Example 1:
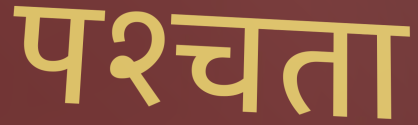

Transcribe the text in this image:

पश्चता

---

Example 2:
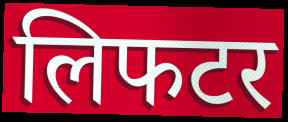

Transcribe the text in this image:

लिफटर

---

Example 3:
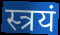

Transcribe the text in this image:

स्त्रयं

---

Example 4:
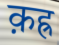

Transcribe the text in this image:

क़ह्र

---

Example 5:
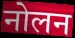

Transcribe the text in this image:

नोलन